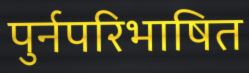
पुर्नपरिभाषित